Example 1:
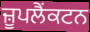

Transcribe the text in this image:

ਜ਼ੂਪਲੈਂਕਟਨ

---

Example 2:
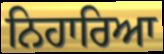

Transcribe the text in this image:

ਨਿਹਾਰਿਆ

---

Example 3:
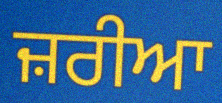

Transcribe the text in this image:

ਜ਼ਰੀਆ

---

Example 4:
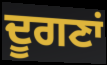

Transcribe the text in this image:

ਦੂਗਣਾਂ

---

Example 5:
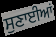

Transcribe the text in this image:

ਸੁਣਾਈਆਂ